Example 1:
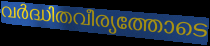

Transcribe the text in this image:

വർദ്ധിതവീര്യത്തോടെ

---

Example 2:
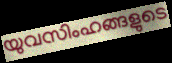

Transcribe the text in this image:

യുവസിംഹങ്ങളുടെ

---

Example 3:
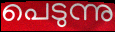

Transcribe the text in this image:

പെടുന്നു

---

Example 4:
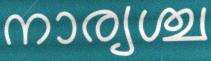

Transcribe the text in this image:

നാര്യശ്ച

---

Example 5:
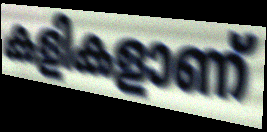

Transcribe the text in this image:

കളികളാണ്